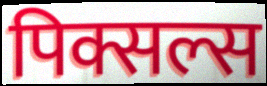
पिक्सल्स